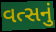
વત્સનું